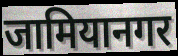
जामियानगर